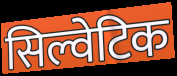
सिल्वेटिक